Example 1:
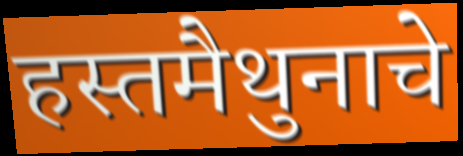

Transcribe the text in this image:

हस्तमैथुनाचे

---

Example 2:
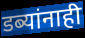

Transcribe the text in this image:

डब्यांनाही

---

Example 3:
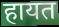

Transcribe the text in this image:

हायत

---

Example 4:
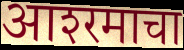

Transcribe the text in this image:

आश्रमाचा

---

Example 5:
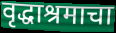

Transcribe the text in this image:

वृद्धाश्रमाचा